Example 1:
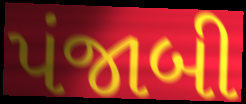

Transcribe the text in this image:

પંજાબી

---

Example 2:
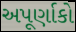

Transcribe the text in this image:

અપૂર્ણાકો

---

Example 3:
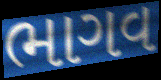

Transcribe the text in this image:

ભાગવ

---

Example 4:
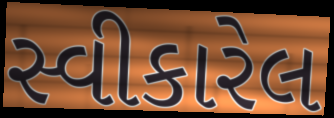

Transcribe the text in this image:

સ્વીકારેલ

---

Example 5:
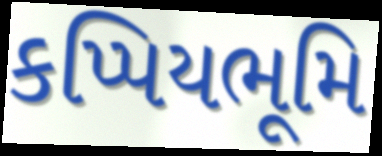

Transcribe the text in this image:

કપ્પિયભૂમિ